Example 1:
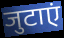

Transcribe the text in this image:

जुटाएं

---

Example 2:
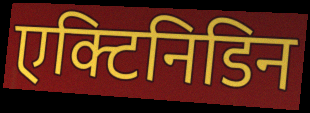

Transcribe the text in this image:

एक्टिनिडिन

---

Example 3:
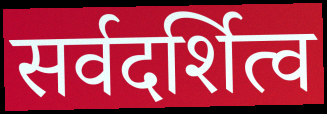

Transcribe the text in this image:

सर्वदर्शित्व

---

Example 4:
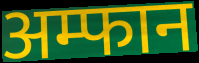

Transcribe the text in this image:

अम्‍फान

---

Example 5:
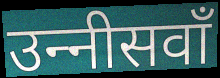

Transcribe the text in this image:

उन्‍नीसवाँ